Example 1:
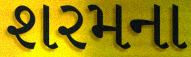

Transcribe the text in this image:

શરમના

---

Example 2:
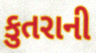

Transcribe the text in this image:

કુતરાની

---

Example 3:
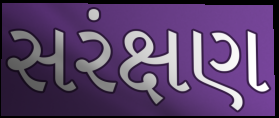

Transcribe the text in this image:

સરંક્ષણ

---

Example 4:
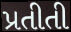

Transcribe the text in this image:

પ્રતીતી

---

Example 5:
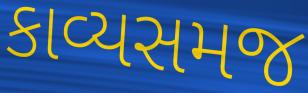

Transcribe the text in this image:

કાવ્યસમજ